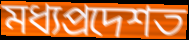
মধ্যপ্ৰদেশত